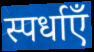
स्पर्धाएँ